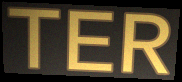
TER